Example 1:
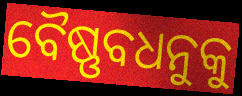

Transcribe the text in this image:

ବୈଷ୍ଣବଧନୁକୁ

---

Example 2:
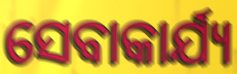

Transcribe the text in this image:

ସେବାକାର୍ଯ୍ୟ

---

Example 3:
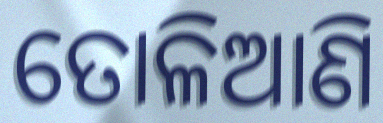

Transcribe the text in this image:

ତୋଳିଆଣି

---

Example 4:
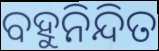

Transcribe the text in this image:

ବହୁନିନ୍ଦିତ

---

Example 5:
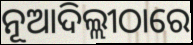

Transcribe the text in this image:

ନୂଆଦିଲ୍ଲୀଠାରେ